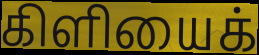
கிளியைக்